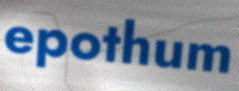
epothum